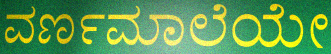
ವರ್ಣಮಾಲೆಯೇ